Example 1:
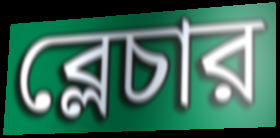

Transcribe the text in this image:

ব্লেচার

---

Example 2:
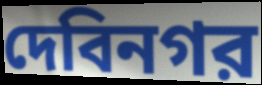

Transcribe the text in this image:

দেবিনগর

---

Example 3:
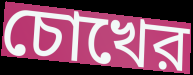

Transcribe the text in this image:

চোখের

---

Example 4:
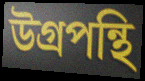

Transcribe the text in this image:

উগ্রপন্থি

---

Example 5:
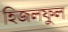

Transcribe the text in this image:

হিজলফুল